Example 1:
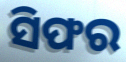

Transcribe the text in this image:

ସିଫର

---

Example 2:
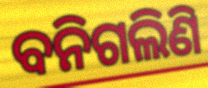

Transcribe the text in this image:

ବନିଗଲିଣି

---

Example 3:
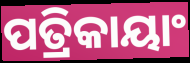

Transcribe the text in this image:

ପତ୍ରିକାୟାଂ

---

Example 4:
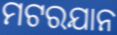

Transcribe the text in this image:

ମଟରଯାନ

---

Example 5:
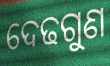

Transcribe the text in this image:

ଦେଢଗୁଣ